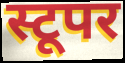
स्टूपर